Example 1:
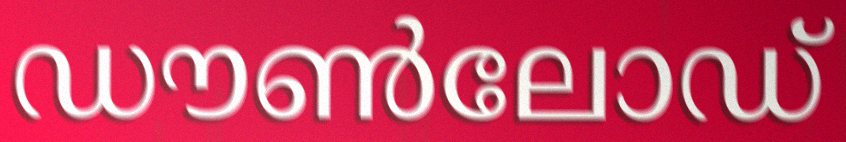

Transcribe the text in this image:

ഡൗൺലോഡ്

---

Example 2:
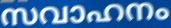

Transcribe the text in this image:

സവാഹനം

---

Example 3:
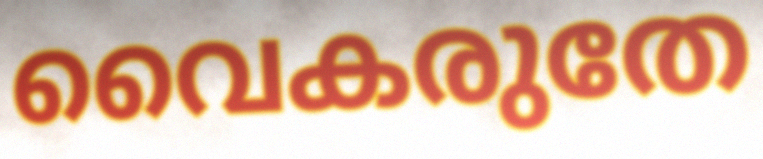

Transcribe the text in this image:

വൈകരുതേ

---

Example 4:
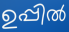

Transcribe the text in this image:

ഉപ്പിൽ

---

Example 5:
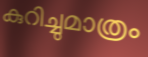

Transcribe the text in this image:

കുറിച്ചുമാത്രം